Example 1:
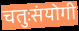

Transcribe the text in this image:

चतुःसंयोगी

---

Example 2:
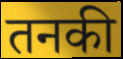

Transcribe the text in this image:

तनकी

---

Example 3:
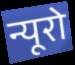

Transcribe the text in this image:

न्यूरो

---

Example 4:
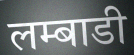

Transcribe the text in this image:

लम्बाडी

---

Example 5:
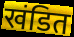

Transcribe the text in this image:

खंडित